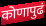
कोणापुढं